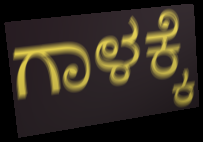
ಗಾಳಕ್ಕೆ